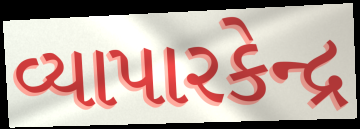
વ્યાપારકેન્દ્ર